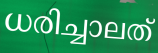
ധരിച്ചാലത്